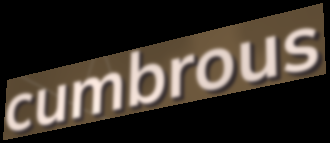
cumbrous